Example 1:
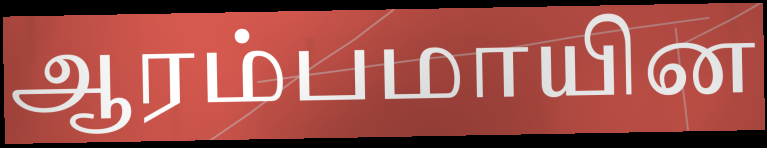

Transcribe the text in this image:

ஆரம்பமாயின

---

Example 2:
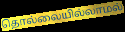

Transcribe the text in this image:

தொல்லையில்லாமல்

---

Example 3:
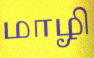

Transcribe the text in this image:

மாழி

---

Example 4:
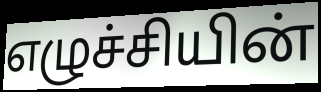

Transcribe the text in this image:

எழுச்சியின்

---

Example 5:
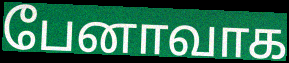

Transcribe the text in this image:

பேனாவாக